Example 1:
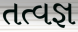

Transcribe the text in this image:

તત્વજ્ઞ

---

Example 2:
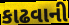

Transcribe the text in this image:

કાઢવાની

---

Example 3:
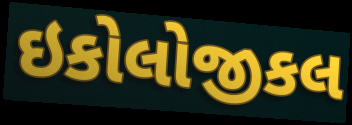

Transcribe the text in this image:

ઇકોલોજીકલ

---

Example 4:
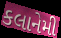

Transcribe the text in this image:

કલાનેમી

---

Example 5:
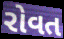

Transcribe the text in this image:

રોવત